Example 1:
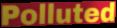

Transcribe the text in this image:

Polluted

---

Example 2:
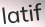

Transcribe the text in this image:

latif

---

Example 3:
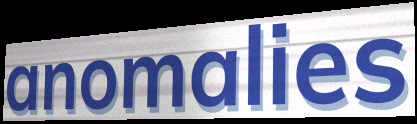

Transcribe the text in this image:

anomalies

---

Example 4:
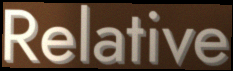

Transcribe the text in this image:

Relative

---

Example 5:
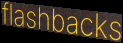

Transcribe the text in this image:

flashbacks